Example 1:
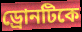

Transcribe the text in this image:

ড্রোনটিকে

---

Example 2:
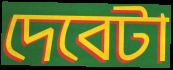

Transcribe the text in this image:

দেবেটা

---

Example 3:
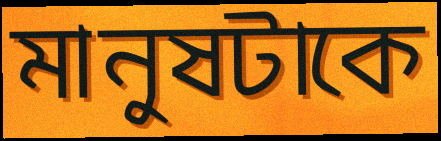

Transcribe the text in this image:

মানুষটাকে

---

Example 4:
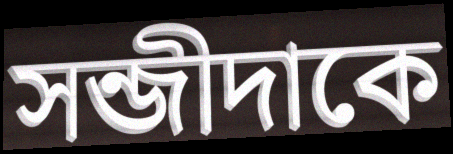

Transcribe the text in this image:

সন্জীদাকে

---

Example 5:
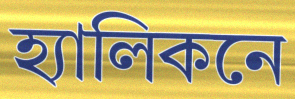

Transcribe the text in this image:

হ্যালিকনে